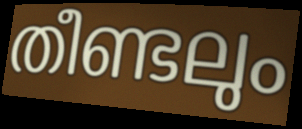
തീണ്ടലും